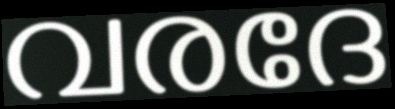
വരദേ